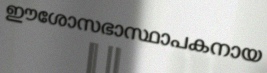
ഈശോസഭാസ്ഥാപകനായ